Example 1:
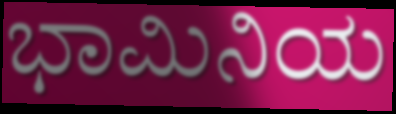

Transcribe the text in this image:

ಭಾಮಿನಿಯ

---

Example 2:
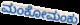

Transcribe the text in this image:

ಮಂಕೋಮಂಕು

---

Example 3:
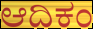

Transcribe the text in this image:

ಆದಿಕಂ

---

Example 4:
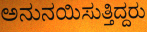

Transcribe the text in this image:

ಅನುನಯಿಸುತ್ತಿದ್ದರು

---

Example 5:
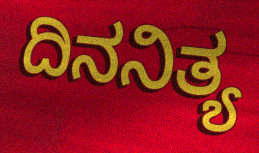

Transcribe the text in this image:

ದಿನನಿತ್ಯ